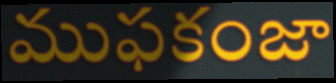
ముఫకంజా